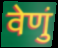
वेणुं